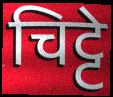
चिट्टे